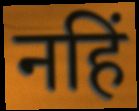
नहिं